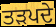
ਤੜਪਦੇ